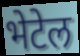
भेटेल